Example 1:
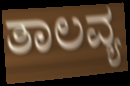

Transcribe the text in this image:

ತಾಲವ್ಯ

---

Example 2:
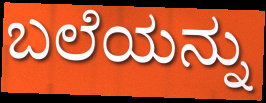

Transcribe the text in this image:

ಬಲೆಯನ್ನು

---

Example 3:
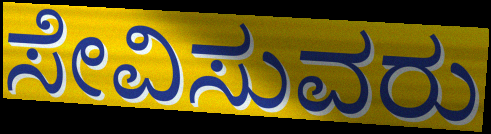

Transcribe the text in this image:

ಸೇವಿಸುವರು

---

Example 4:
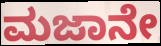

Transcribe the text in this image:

ಮಜಾನೇ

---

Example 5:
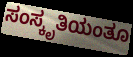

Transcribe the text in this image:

ಸಂಸ್ಕೃತಿಯಂತೂ